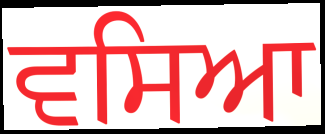
ਵਸਿਆ